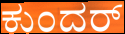
ಕುಂದರ್